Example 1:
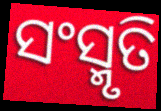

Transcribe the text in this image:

ସଂସ୍ମୃତି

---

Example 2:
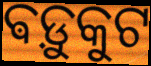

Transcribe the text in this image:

ଵଡ଼ୁକୁଟ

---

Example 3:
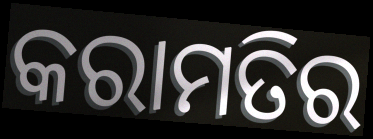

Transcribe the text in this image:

କରାମତିର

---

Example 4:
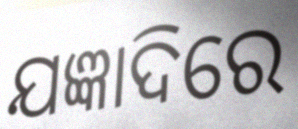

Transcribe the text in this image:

ଯଜ୍ଞାଦିରେ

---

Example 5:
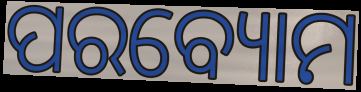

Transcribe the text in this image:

ପରବ୍ୟୋମ